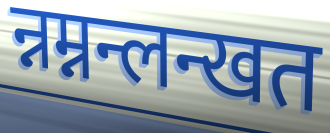
न्नम्नन्लन्खत